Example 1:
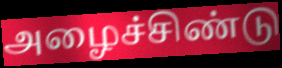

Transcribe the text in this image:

அழைச்சிண்டு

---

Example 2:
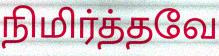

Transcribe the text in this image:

நிமிர்த்தவே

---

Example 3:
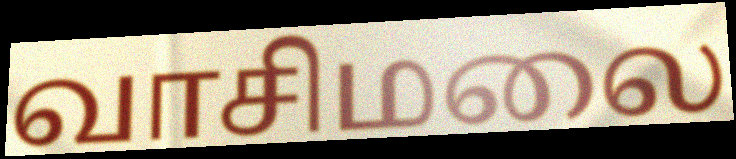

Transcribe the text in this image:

வாசிமலை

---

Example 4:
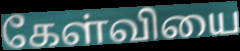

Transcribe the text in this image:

கேள்வியை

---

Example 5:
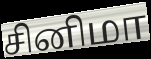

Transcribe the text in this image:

சினிமா